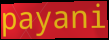
payani